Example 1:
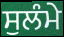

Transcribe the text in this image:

ਸੁਲੰਮੇ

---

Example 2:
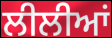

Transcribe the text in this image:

ਲੀਲੀਆਂ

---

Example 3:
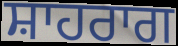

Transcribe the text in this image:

ਸ਼ਾਹਰਾਗ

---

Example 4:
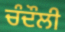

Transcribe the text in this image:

ਚੰਦੌਲੀ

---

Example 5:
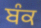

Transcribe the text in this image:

ਬੰਕ